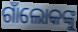
ଗାଁଲୋକଙ୍କୁ